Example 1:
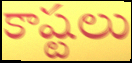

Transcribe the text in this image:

కాష్టలు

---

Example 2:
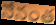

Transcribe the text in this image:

నేనంత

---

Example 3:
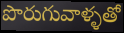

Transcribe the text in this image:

పొరుగువాళ్ళతో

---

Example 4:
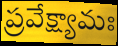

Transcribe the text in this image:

ప్రవేక్ష్యామః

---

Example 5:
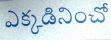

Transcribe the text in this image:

ఎక్కడినించో